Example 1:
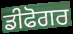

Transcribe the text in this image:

ਡੀਫੋਗਰ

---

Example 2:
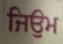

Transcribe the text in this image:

ਜਿਉਮ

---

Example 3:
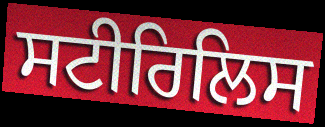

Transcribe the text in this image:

ਸਟੀਰਿਲਿਸ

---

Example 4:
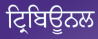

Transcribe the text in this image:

ਟ੍ਰਿਬਿਊਨਲ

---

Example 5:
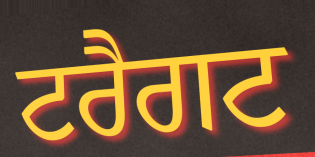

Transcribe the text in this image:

ਟਰੈਗਟ